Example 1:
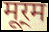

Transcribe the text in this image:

मूर्म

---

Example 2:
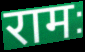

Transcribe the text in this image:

रामः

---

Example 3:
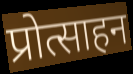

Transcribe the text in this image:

प्रोत्साहन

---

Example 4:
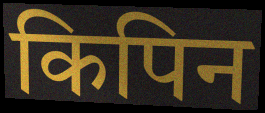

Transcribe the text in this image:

किपिन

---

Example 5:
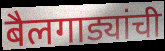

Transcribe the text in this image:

बैलगाड्यांची